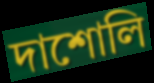
দাশোলি